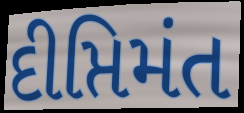
દીપ્તિમંત